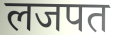
लजपत